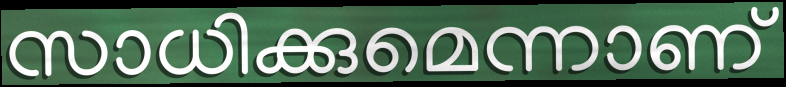
സാധിക്കുമെന്നാണ്